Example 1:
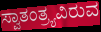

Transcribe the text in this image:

ಸ್ವಾತಂತ್ರ್ಯವಿರುವ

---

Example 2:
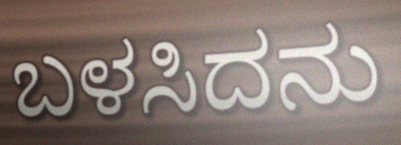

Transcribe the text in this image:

ಬಳಸಿದನು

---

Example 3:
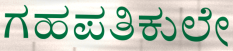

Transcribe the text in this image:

ಗಹಪತಿಕುಲೇ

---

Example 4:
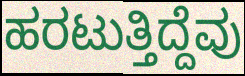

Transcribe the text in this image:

ಹರಟುತ್ತಿದ್ದೆವು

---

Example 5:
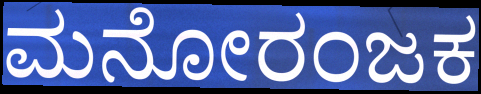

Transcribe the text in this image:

ಮನೋರಂಜಕ